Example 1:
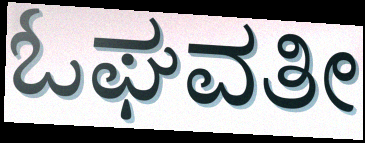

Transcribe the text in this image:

ಓಘವತೀ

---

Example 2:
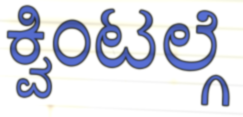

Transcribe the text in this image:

ಕ್ವಿಂಟಲ್ಗೆ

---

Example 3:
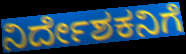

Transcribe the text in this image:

ನಿರ್ದೇಶಕನಿಗೆ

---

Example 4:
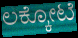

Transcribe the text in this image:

ಲಕ್ಕೋಟೆ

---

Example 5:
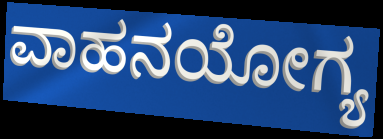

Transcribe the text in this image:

ವಾಹನಯೋಗ್ಯ